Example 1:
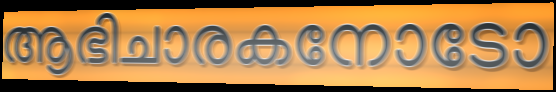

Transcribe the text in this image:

ആഭിചാരകനോടോ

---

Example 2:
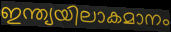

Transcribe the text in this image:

ഇന്ത്യയിലാകമാനം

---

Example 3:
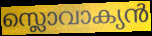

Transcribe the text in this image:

സ്ലൊവാക്യൻ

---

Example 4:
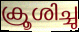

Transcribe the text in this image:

ക്രൂശിച്ചു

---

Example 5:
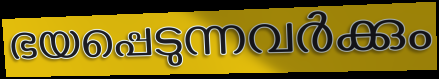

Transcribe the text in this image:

ഭയപ്പെടുന്നവർക്കും